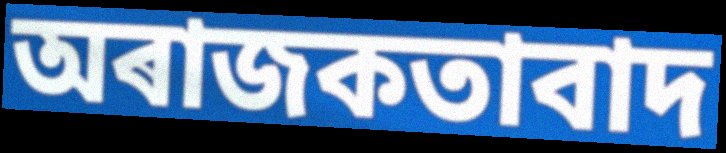
অৰাজকতাবাদ